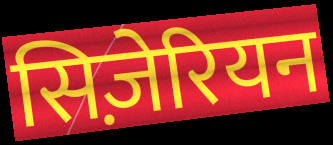
सिज़ेरियन